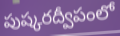
పుష్కరద్వీపంలో